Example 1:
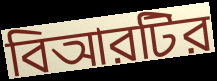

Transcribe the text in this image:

বিআরটির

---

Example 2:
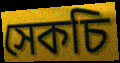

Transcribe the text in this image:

সেকচি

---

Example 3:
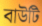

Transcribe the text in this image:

বাউটি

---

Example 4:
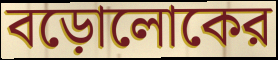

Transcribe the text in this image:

বড়োলোকের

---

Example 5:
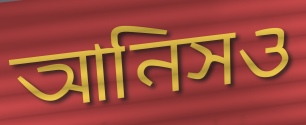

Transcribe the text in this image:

আনিসও